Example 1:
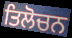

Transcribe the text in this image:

ਤਿਲੋਚਨ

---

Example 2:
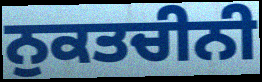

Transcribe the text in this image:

ਨੁਕਤਚੀਨੀ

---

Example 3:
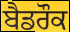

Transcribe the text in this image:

ਬੈਡਰੌਕ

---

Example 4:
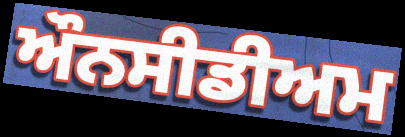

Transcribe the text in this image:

ਔਨਸੀਡੀਅਮ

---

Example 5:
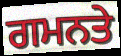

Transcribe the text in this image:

ਗਮਨਤੇ